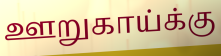
ஊறுகாய்க்கு